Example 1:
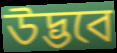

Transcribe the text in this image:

উদ্ভবে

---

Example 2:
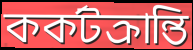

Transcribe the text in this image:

কর্কটক্রান্তি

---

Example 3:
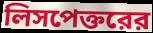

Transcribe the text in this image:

লিসপেক্তরের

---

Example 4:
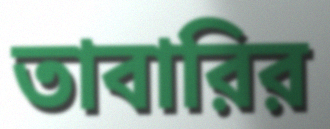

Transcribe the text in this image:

তাবারির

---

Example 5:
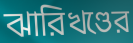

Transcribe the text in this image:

ঝারিখণ্ডের